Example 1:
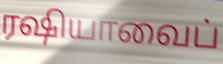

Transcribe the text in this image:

ரஷியாவைப்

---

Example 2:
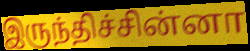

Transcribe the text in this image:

இருந்திச்சின்னா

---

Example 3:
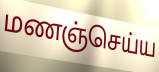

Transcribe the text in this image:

மணஞ்செய்ய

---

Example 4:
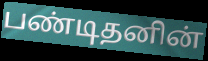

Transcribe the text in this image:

பண்டிதனின்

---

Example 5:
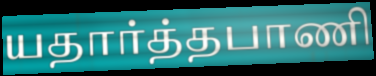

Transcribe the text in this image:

யதார்த்தபாணி